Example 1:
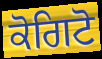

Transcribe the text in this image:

ਕੋਗਿਟੋ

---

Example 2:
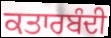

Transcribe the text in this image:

ਕਤਾਰਬੰਦੀ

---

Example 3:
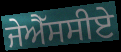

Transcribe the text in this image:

ਜੇਐੱਸਸੀਏ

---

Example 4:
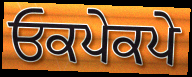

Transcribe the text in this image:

ਓਕਪੇਕਪੇ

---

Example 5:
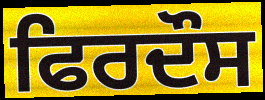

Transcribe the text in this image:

ਫਿਰਦੌਸ